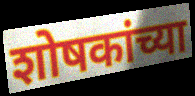
शोषकांच्या